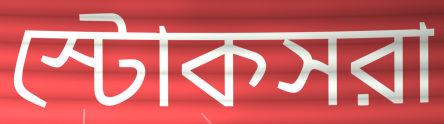
স্টোকসরা